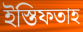
ইস্তিফতাহ